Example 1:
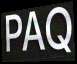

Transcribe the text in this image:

PAQ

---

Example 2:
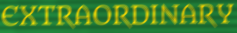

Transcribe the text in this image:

EXTRAORDINARY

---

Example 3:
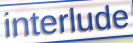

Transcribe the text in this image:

interlude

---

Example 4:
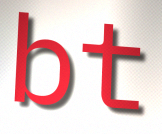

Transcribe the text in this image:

bt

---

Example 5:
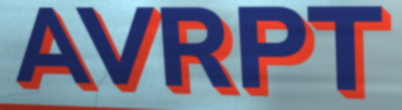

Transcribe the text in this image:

AVRPT